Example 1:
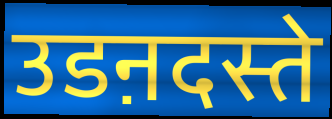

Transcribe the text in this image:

उडऩदस्ते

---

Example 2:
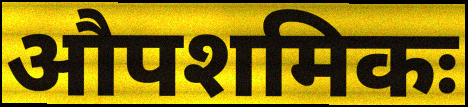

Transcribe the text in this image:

औपशमिकः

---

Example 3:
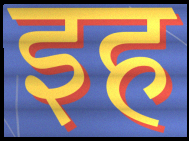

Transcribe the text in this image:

इह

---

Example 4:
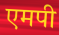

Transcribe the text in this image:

एमपी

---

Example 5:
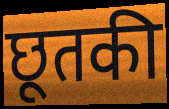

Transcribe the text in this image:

छूतकी